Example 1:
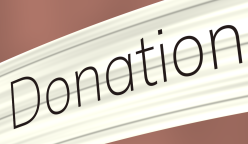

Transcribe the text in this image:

Donation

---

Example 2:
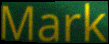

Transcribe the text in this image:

Mark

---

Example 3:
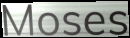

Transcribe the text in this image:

Moses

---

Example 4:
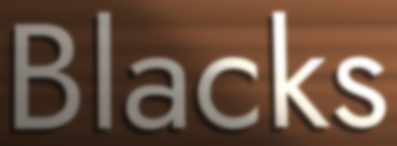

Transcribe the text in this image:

Blacks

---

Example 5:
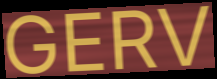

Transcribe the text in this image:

GERV